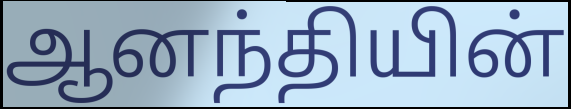
ஆனந்தியின்